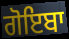
ਗੋਇਬਾ